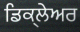
ਡਿਕ੍ਲੇਅਰ